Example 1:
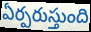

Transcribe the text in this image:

ఏర్పరుస్తుంది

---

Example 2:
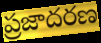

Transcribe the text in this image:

ప్రజాదరణ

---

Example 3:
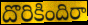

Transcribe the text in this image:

దొరికిందిరా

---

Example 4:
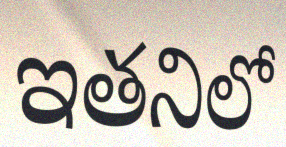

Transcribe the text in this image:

ఇతనిలో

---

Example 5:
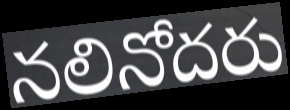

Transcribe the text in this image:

నలినోదరు